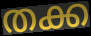
തക്ക